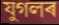
যুগলৰ